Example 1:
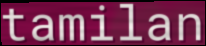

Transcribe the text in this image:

tamilan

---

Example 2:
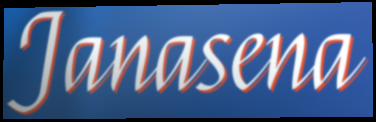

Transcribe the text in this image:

Janasena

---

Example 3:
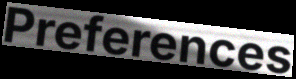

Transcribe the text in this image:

Preferences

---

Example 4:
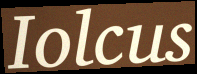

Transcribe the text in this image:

Iolcus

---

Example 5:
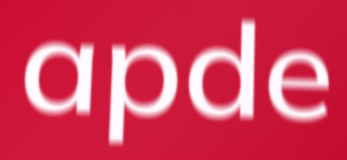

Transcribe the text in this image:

apde